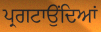
ਪ੍ਰਗਟਾਉਂਦਿਆਂ